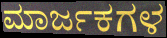
ಮಾರ್ಜಕಗಳ